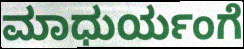
ಮಾಧುರ್ಯಂಗೆ